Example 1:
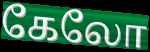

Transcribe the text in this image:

கேலோ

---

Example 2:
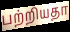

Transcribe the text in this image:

பற்றியதா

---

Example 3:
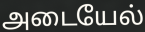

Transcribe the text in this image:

அடையேல்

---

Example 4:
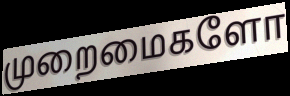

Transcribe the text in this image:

முறைமைகளோ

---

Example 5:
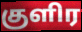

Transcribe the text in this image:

குளிர